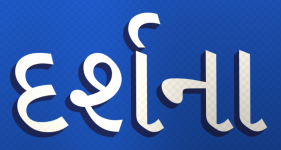
દર્શના